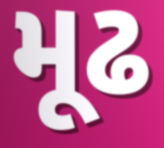
મૂઢ